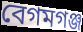
বেগমগঞ্জ